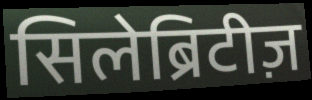
सिलेब्रिटीज़